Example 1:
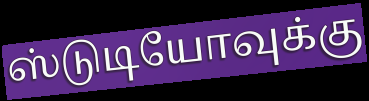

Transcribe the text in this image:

ஸ்டுடியோவுக்கு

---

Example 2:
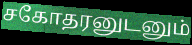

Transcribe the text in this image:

சகோதரனுடனும்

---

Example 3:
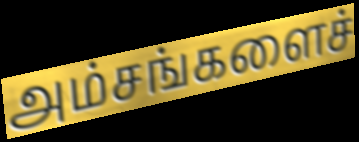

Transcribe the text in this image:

அம்சங்களைச்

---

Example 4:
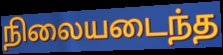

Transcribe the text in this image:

நிலையடைந்த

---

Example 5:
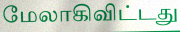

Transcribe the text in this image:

மேலாகிவிட்டது